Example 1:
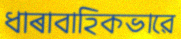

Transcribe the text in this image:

ধাৰাবাহিকভাৱে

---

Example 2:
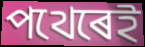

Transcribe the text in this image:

পথেৰেই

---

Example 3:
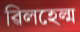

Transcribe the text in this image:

ৱিলহেল্ম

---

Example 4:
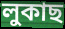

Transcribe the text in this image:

লুকাছ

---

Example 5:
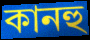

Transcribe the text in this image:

কানহু